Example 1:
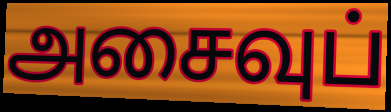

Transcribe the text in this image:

அசைவுப்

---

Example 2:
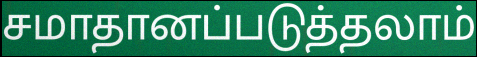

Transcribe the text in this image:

சமாதானப்படுத்தலாம்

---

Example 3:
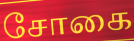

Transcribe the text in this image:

சோகை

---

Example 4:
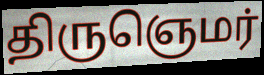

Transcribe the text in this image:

திருஞெமர்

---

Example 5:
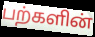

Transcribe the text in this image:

பற்களின்